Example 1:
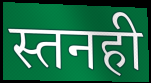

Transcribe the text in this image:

स्तनही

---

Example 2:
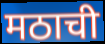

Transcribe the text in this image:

मठाची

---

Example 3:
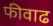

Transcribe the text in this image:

फीवाढ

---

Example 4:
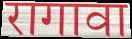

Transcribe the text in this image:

रागावा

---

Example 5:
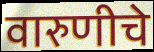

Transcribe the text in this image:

वारुणीचे